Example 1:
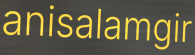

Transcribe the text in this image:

anisalamgir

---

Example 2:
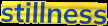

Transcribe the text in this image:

stillness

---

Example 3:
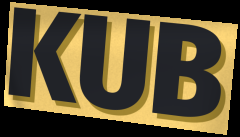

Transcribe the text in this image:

KUB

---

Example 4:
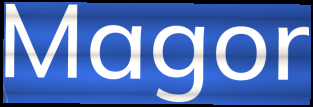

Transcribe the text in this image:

Magor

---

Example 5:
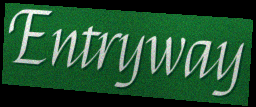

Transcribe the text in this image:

Entryway